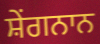
ਸ਼ੇਂਗਨਾਨ